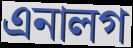
এনালগ